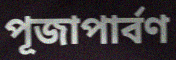
পূজাপার্বণ